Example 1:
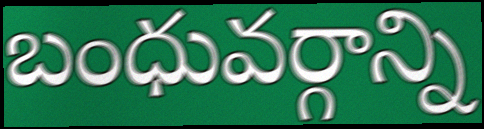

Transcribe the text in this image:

బంధువర్గాన్ని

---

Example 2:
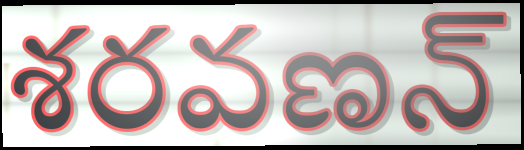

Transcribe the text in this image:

శరవణన్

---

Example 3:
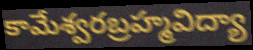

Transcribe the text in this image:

కామేశ్వరబ్రహ్మవిద్యా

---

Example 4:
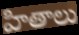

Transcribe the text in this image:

హితాలు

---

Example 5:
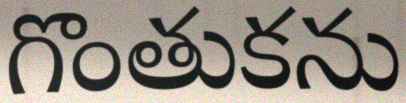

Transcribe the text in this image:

గొంతుకను